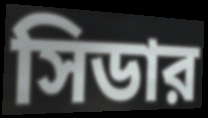
সিডার